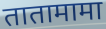
तातामामा